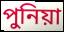
পুনিয়া